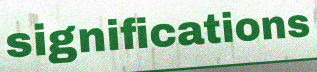
significations